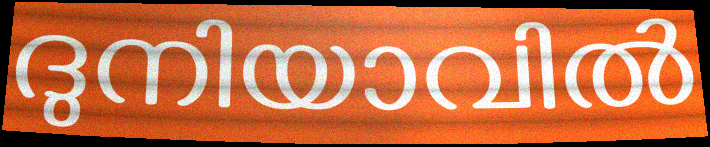
ദുനിയാവിൽ